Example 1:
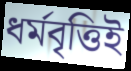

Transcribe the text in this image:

ধর্মবৃত্তিই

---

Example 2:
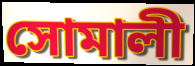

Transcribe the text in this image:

সোমালী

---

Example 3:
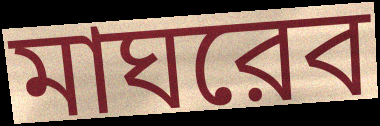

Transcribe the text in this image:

মাঘরেব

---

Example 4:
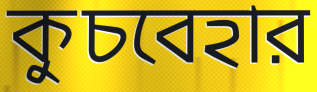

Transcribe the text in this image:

কুচবেহার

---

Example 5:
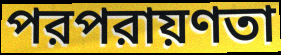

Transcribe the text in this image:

পরপরায়ণতা